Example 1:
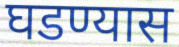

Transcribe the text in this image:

घडण्यास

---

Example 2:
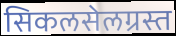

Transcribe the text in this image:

सिकलसेलग्रस्त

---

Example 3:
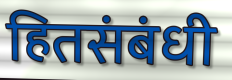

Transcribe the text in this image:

हितसंबंधी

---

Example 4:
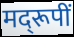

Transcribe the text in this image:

मद्‌रूपीं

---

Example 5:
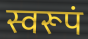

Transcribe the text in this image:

स्वरूपं